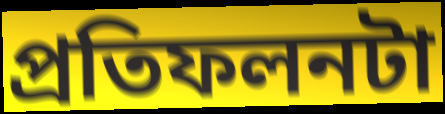
প্রতিফলনটা